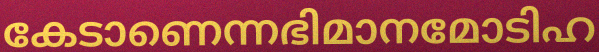
കേടാണെന്നഭിമാനമോടിഹ